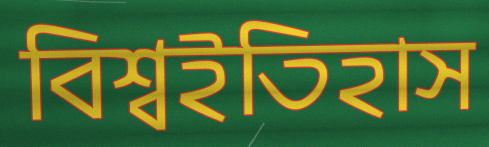
বিশ্বইতিহাস